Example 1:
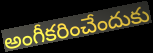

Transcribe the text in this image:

అంగీకరించేందుకు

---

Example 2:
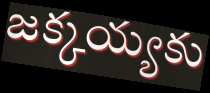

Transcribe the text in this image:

జక్కయ్యకు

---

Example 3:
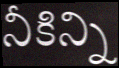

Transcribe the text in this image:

నీకిన్ని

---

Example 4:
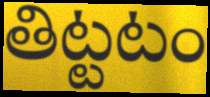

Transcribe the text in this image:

తిట్టటం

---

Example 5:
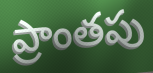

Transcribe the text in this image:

ప్రాంతపు